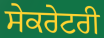
ਸੇਕਰੇਟਰੀ